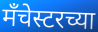
मँचेस्टरच्या